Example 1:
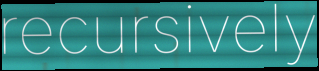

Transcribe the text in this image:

recursively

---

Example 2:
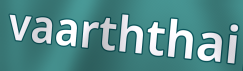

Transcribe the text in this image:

vaarththai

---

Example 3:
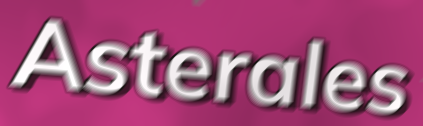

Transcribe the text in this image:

Asterales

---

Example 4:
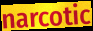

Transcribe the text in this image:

narcotic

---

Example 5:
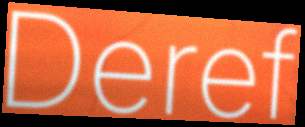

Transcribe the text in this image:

Deref